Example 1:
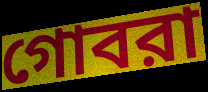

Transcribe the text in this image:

গোবরা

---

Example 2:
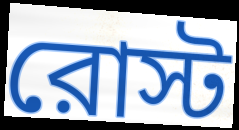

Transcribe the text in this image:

রোস্ট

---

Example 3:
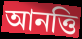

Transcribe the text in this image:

আনত্তি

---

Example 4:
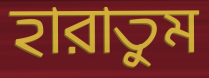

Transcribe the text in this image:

হারাতুম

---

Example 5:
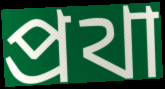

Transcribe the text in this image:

প্রথা